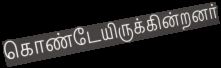
கொண்டேயிருக்கின்றனர்